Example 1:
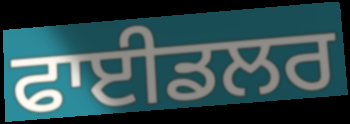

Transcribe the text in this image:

ਫਾਈਡਲਰ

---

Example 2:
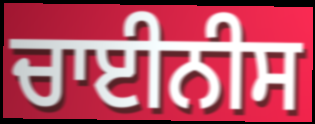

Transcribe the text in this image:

ਚਾਈਨੀਸ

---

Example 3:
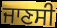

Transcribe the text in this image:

ਜਾਣਸੀ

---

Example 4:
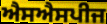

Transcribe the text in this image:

ਐਸਐਸਪੀਜ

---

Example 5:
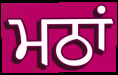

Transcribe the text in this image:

ਮਠਾਂ